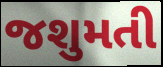
જશુમતી